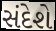
સંદેશે